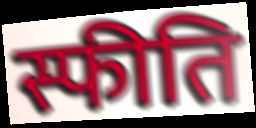
स्‍फीति